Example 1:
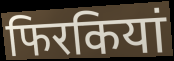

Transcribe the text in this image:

फिरकियां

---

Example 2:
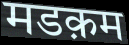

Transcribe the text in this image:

मडक़म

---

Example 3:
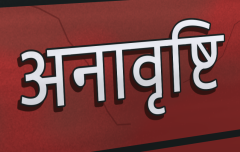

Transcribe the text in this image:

अनावृष्टि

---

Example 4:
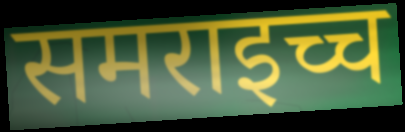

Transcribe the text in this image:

समराइच्च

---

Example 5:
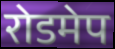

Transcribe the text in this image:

रोडमेप